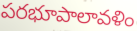
పరభూపాలావళిం